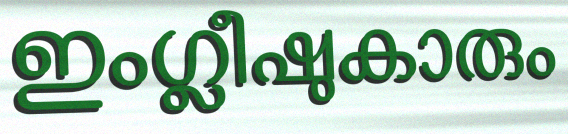
ഇംഗ്ലീഷുകാരും